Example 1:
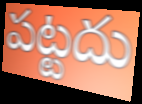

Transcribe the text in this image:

పట్టదు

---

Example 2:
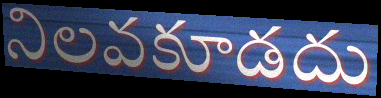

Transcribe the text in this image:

నిలవకూడదు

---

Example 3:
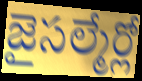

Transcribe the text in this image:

జైసల్మేర్లో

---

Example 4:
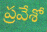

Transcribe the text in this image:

ప్రవేశో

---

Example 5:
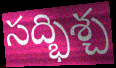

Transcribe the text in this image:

సద్భిశ్చ